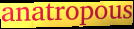
anatropous